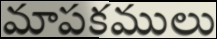
మాపకములు